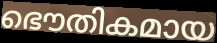
ഭൌതികമായ